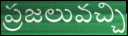
ప్రజలువచ్చి